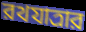
রথযাত্রার